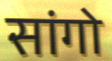
सांगो